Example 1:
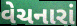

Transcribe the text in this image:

વેચનારાં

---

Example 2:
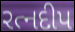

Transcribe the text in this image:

રત્નદીપ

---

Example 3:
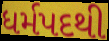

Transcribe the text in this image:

ધર્મપદથી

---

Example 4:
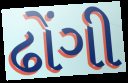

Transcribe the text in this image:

ઢોંગી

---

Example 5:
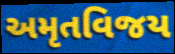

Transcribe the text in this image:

અમૃતવિજય